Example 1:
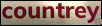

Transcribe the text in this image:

countrey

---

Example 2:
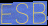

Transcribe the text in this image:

ESB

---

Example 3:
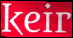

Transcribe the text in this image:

keir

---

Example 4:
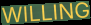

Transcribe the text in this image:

WILLING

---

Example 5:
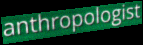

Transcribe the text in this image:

anthropologist